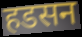
हडसन